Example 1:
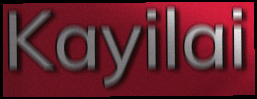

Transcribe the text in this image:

Kayilai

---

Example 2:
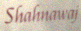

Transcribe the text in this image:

Shahnawaj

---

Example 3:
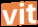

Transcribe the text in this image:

vit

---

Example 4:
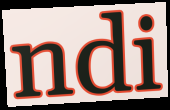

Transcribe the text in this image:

ndi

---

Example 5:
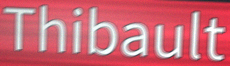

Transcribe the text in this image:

Thibault